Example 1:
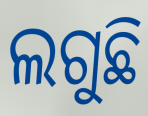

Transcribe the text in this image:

ଲଗୁଛି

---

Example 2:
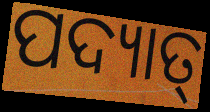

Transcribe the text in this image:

ପଦ୍ୟାତ୍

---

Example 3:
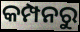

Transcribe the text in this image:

କମ୍ପନରୁ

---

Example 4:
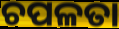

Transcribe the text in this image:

ଚପଳତା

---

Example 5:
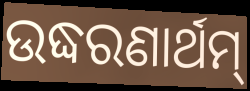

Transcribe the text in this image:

ଉଦ୍ଧରଣାର୍ଥମ୍